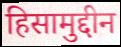
हिसामुद्दीन